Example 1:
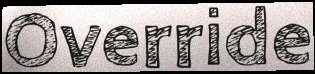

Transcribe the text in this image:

Override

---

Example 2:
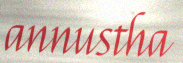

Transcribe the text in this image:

annustha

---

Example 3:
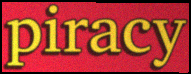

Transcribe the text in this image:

piracy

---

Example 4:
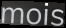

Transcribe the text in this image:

mois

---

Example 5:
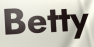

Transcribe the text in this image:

Betty